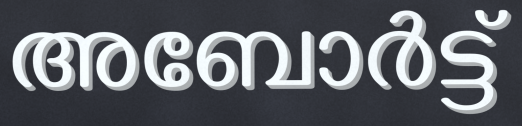
അബോർട്ട്